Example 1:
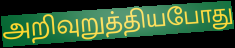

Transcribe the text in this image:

அறிவுறுத்தியபோது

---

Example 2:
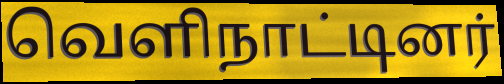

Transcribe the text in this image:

வெளிநாட்டினர்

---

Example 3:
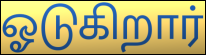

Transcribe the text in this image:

ஓடுகிறார்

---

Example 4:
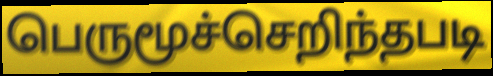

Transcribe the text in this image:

பெருமூச்செறிந்தபடி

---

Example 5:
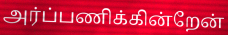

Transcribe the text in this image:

அர்ப்பணிக்கின்றேன்